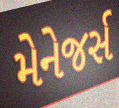
મેનેજર્સ